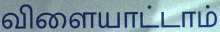
விளையாட்டாம்